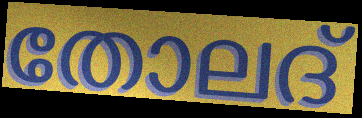
തോലദ്